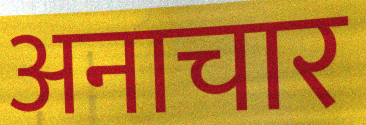
अनाचार